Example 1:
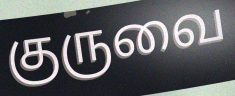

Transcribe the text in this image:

குருவை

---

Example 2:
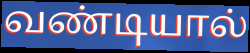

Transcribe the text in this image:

வண்டியால்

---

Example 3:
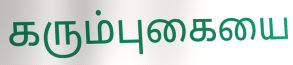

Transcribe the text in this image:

கரும்புகையை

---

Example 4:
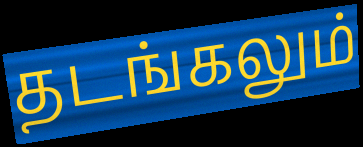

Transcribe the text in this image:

தடங்கலும்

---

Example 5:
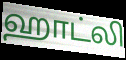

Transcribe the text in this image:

ஹாட்லி